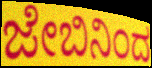
ಜೇಬಿನಿಂದ